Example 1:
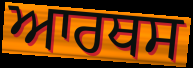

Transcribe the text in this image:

ਆਰਥਸ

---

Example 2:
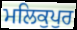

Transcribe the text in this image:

ਮਲਿਕੁਪੁਰ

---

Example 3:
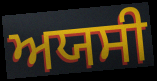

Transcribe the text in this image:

ਅਯਸੀ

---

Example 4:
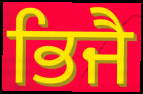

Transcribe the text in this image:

ਭਿਜੈ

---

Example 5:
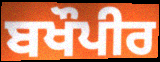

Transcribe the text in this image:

ਬਖੌਪੀਰ